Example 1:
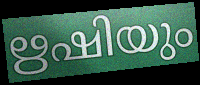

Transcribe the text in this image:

ഋഷിയും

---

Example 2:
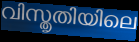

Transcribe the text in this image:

വിസ്തൃതിയിലെ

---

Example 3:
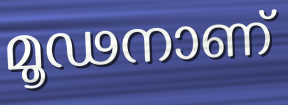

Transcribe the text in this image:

മൂഢനാണ്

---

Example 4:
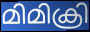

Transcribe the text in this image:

മിമിക്രി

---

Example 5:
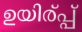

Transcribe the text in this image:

ഉയിര്പ്പ്